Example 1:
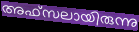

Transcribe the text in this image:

അഫ്സലായിരുന്നു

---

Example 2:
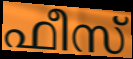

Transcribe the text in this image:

ഫീസ്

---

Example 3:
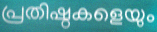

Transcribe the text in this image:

പ്രതിഷ്ഠകളെയും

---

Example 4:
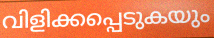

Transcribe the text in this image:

വിളിക്കപ്പെടുകയും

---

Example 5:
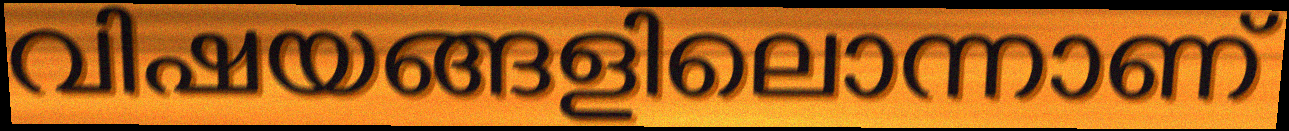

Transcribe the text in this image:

വിഷയങ്ങളിലൊന്നാണ്